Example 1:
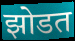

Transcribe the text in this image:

झोडत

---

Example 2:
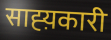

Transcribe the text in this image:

साह्य़कारी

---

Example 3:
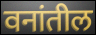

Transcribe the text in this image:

वनांतील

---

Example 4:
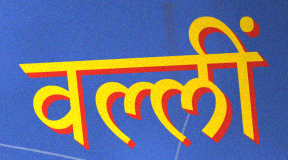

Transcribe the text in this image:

वल्लीं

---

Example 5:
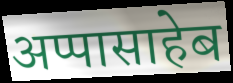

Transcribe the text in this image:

अप्पासाहेब